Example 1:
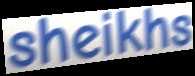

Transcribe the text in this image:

sheikhs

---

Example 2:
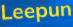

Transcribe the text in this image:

Leepun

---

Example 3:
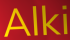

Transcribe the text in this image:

Alki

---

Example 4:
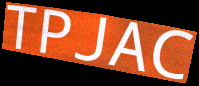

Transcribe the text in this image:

TPJAC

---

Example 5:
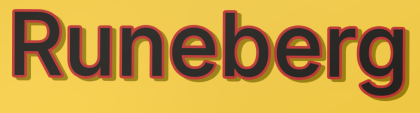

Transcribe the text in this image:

Runeberg